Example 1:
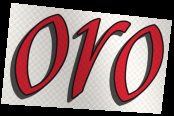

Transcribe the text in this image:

oro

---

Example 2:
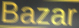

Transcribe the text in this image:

Bazar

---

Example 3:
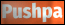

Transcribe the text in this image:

Pushpa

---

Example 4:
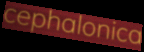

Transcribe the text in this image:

cephalonica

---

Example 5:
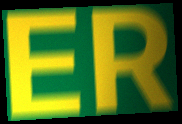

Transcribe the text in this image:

ER